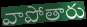
వాపోతారు